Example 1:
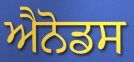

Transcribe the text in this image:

ਐਨੋਡਸ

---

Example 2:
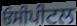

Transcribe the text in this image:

ਓਸੀਪੀਟਲ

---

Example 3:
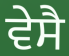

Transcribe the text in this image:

ਵੇਸੈ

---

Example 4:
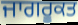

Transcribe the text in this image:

ਜਾਗਰੂਕਤ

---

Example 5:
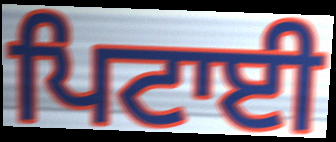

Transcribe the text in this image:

ਪਿਟਾਈ